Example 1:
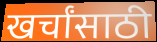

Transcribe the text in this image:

खर्चांसाठी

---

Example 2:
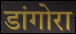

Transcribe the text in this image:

डांगोरा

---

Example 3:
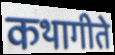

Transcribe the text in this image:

कथागीते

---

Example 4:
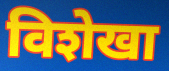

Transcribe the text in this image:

विशेखा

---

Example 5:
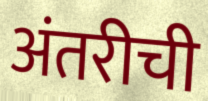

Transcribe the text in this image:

अंतरीची